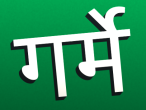
गर्मे